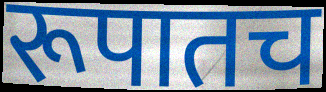
रूपातच